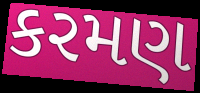
કરમણ